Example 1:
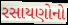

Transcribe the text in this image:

રસાયણોનો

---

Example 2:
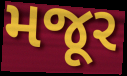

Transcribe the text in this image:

મજૂર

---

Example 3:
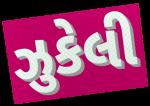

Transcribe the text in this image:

ઝુકેલી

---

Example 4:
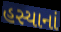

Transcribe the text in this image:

હસ્યાનાં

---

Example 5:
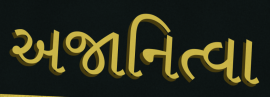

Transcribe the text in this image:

અજાનિત્વા